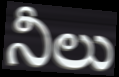
నీలు